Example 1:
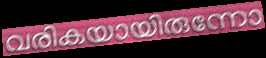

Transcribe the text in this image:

വരികയായിരുന്നോ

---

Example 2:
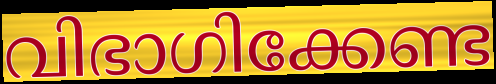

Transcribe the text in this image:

വിഭാഗിക്കേണ്ട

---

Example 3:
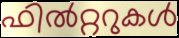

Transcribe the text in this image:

ഫിൽറ്ററുകൾ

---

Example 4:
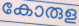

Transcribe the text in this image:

കോരുള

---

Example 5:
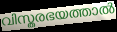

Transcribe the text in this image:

വിസ്തരഭയത്താൽ